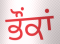
ਭੌਂਕਾਂ